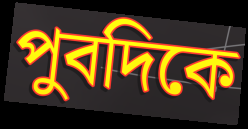
পুবদিকে